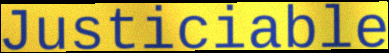
Justiciable